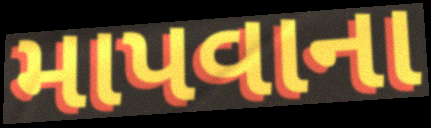
માપવાના